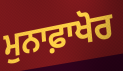
ਮੁਨਾਫ਼ਾਖੋਰ